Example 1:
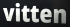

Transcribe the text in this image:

vitten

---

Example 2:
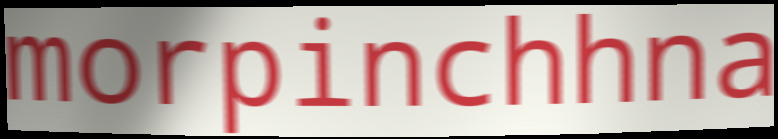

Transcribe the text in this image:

morpinchhna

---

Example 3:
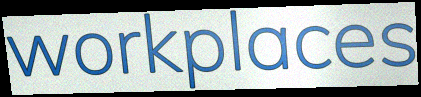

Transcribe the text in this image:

workplaces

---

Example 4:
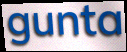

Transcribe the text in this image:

gunta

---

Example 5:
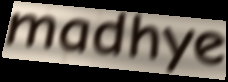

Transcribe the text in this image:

madhye